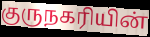
குருநகரியின்